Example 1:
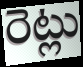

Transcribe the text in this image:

రెట్లు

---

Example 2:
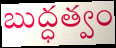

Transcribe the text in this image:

బుద్ధత్వం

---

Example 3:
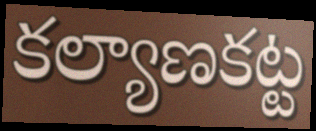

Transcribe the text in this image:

కల్యాణకట్ట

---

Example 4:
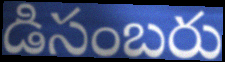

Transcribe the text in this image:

డిసంబరు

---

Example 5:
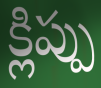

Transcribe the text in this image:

క్లిప్పు